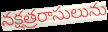
నక్షత్రరాసులును